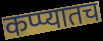
कप्प्यातच